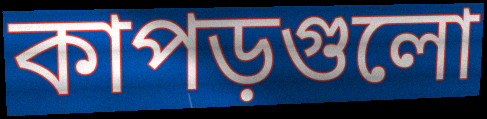
কাপড়গুলো